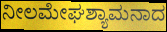
ನೀಲಮೇಘಶ್ಯಾಮನಾದ